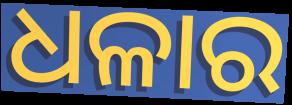
ଧଳାର